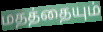
மதத்தையும்